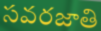
సవరజాతి